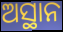
ଅସ୍ଥାନ